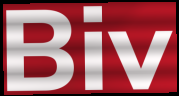
Biv